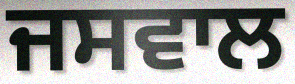
ਜਸਵਾਲ